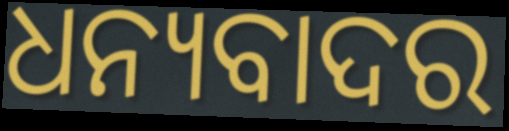
ଧନ୍ୟବାଦର